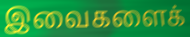
இவைகளைக்